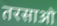
तरसाओ